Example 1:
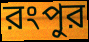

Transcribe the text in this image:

রংপুর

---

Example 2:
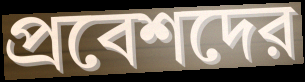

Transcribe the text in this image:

প্রবেশদের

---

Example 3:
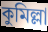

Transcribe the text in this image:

কুমিল্লা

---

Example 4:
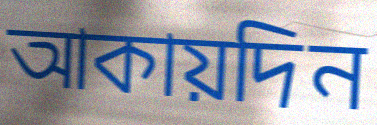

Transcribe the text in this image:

আকায়দিন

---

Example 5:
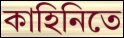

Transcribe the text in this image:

কাহিনিতে